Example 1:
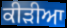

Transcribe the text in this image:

ਕੀੜੀਆ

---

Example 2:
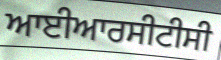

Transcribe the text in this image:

ਆਈਆਰਸੀਟੀਸੀ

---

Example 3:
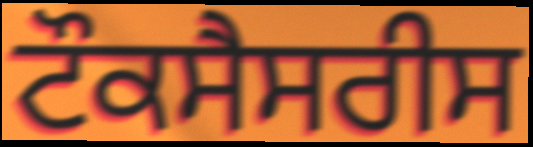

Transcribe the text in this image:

ਟੌਕਸੈਸਰੀਸ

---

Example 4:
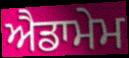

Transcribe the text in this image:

ਐਡਾਮੇਮ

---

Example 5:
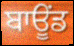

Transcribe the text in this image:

ਬਾਊਂਡ